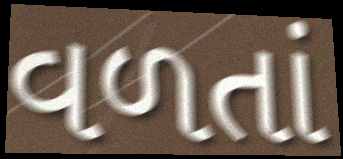
વળતાં